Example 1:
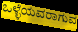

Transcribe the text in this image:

ಒಳ್ಳೆಯವರಾಗುವ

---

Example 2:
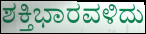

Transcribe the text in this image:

ಶಕ್ತಿಭಾರವಳಿದು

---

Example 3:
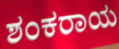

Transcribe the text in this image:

ಶಂಕರಾಯ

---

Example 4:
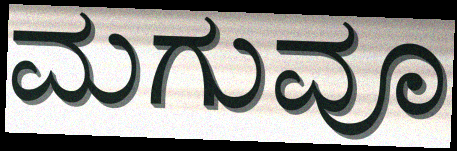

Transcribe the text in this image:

ಮಗುವೂ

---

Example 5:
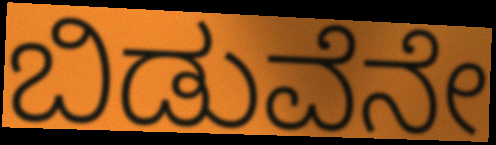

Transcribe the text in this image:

ಬಿಡುವೆನೇ